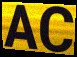
AC